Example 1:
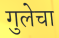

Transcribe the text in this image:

गुलेचा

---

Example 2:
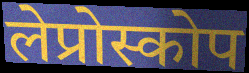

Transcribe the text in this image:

लेप्रोस्कोप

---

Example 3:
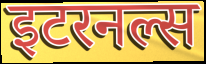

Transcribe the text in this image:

इटरनल्स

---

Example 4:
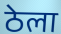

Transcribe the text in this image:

ठेला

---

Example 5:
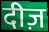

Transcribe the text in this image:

दीज़